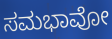
ಸಮಭಾವೋ